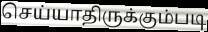
செய்யாதிருக்கும்படி